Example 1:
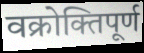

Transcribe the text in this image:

वक्रोक्तिपूर्ण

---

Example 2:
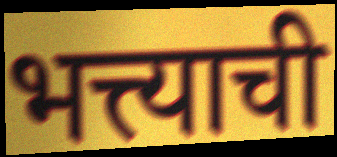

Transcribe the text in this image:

भत्त्याची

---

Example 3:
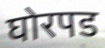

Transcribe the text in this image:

घोरपड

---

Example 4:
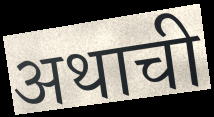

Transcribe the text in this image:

अथाची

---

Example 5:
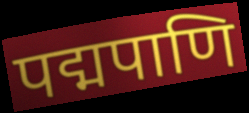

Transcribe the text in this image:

पद्मपाणि